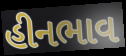
હીનભાવ